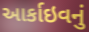
આર્કાઇવનું